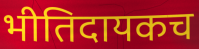
भीतिदायकच